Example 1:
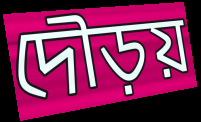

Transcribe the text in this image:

দৌড়য়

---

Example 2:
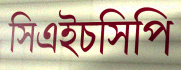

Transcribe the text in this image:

সিএইচসিপি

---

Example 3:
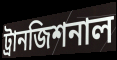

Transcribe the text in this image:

ট্রানজিশনাল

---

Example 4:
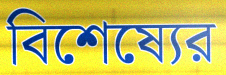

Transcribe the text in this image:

বিশেষ্যের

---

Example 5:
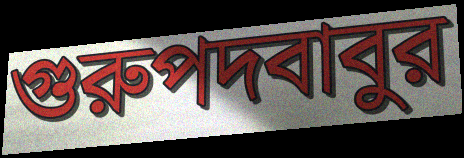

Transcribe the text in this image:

গুরুপদবাবুর